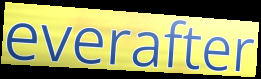
everafter